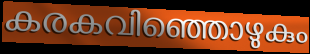
കരകവിഞ്ഞൊഴുകും